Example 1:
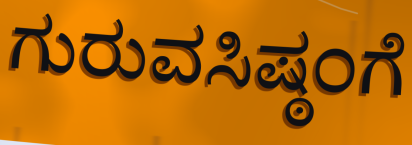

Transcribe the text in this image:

ಗುರುವಸಿಷ್ಠಂಗೆ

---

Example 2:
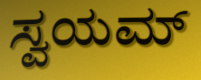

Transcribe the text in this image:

ಸ್ವಯಮ್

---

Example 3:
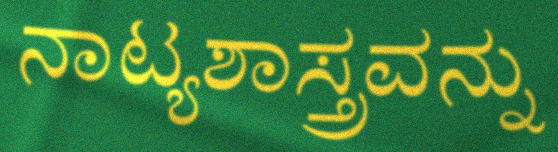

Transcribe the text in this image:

ನಾಟ್ಯಶಾಸ್ತ್ರವನ್ನು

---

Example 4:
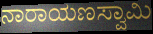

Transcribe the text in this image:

ನಾರಾಯಣಸ್ವಾಮಿ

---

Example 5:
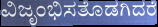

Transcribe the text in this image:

ವಿಜೃಂಭಿಸತೊಡಗಿದರೆ